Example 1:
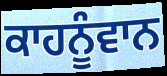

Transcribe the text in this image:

ਕਾਹਨੂੰਵਾਨ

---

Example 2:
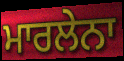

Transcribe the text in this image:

ਮਾਰਲੇਨਾ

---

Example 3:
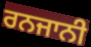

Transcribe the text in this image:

ਰਨਜਾਨੀ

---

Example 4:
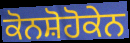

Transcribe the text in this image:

ਕੋਨਸ਼ੋਹੋਕੇਨ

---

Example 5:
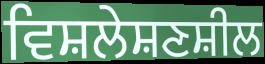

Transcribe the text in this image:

ਵਿਸ਼ਲੇਸ਼ਣਸ਼ੀਲ